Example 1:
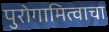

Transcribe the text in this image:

पुरोगामित्वाचा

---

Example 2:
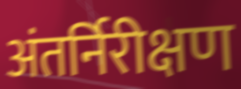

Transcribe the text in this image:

अंतर्निरीक्षण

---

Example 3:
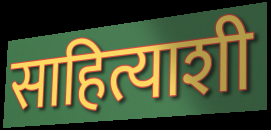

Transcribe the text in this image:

साहित्याशी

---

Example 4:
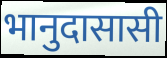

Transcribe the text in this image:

भानुदासासी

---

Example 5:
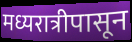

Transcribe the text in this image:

मध्यरात्रीपासून